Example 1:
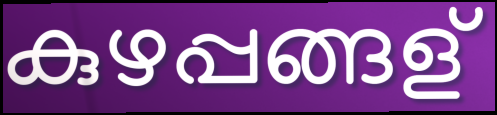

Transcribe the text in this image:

കുഴപ്പങ്ങള്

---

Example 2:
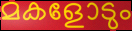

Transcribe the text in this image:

മകളോടും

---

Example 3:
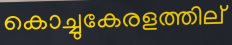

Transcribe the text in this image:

കൊച്ചുകേരളത്തില്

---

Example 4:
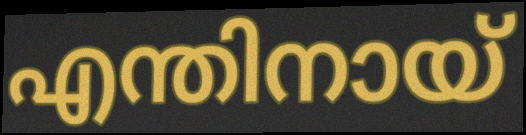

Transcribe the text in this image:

എന്തിനായ്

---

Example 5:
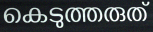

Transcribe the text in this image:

കെടുത്തരുത്